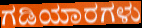
ಗಡಿಯಾರಗಳು